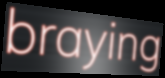
braying